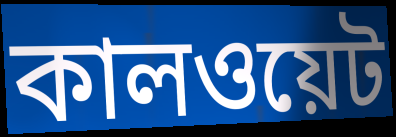
কালওয়েট